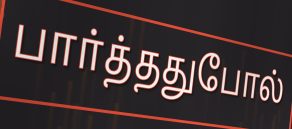
பார்த்ததுபோல்